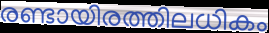
രണ്ടായിരത്തിലധികം